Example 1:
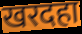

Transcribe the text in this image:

खरदहा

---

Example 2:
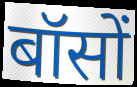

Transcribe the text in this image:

बॉसों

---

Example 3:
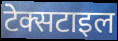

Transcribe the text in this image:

टेक्‍सटाइल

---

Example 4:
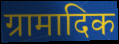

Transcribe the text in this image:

ग्रामादिक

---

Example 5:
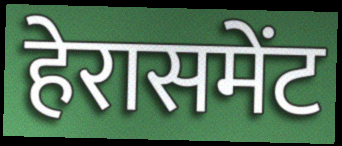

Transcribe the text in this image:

हेरासमेंट